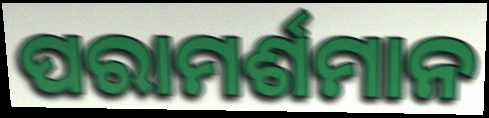
ପରାମର୍ଶମାନ